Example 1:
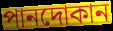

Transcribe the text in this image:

পানদোকান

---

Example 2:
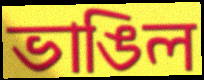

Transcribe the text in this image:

ভাঙিল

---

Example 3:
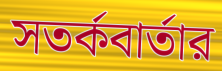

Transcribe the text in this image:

সতর্কবার্তার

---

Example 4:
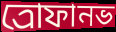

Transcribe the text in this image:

ত্রোফানভ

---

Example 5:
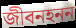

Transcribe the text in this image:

জীবনহনন